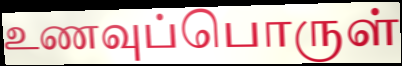
உணவுப்பொருள்